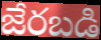
జేరబడి